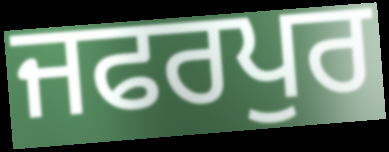
ਜਫਰਪੁਰ